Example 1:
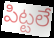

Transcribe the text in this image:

పిట్టలే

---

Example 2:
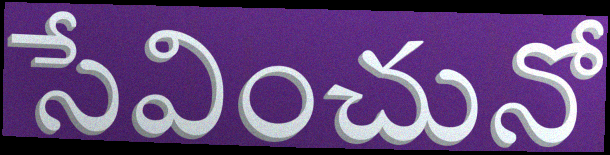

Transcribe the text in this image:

సేవించునో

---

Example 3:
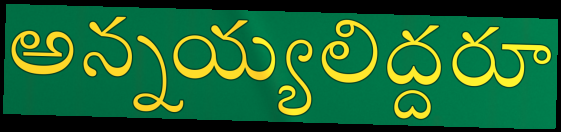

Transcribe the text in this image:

అన్నయ్యలిద్దరూ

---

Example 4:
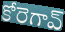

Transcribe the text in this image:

కోరెగావ్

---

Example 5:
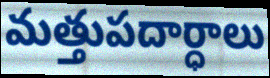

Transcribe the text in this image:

మత్తుపదార్ధాలు